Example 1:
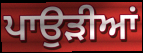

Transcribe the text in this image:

ਪਾਉੜੀਆਂ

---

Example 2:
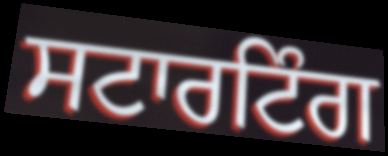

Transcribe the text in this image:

ਸਟਾਰਟਿੰਗ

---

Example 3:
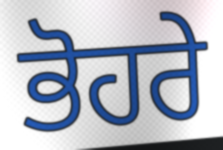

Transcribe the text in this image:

ਭੋਹਰੇ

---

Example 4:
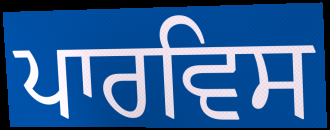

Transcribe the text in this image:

ਪਾਰਵਿਸ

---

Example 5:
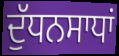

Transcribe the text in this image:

ਦੁੱਧਨਸਾਧਾਂ